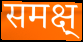
समक्ष्